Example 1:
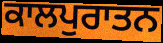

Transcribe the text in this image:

ਕਾਲਪੁਰਾਤਨ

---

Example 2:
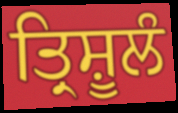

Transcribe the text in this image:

ਤ੍ਰਿਸ਼ੂਲੰ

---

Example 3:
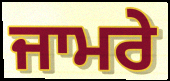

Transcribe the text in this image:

ਜਾਮਰੇ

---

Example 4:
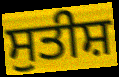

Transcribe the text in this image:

ਸੁਤੀਸ਼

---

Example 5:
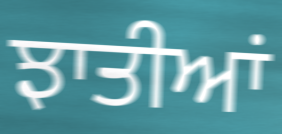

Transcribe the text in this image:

ਝਾਤੀਆਂ